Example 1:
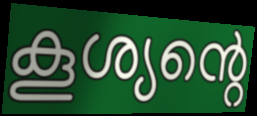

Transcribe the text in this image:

കൂശ്യന്റെ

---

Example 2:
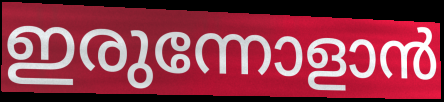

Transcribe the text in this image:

ഇരുന്നോളാൻ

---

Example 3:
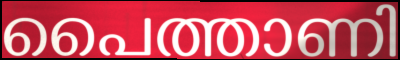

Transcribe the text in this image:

പൈത്താണി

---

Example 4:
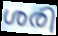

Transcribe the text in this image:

ശരി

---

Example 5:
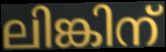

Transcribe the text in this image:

ലിങ്കിന്